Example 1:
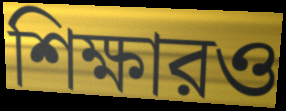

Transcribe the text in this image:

শিক্ষারও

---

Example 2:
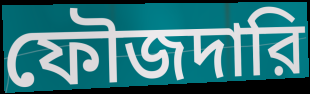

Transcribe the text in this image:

ফৌজদারি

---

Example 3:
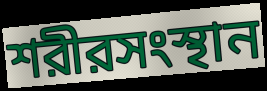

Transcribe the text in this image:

শরীরসংস্থান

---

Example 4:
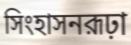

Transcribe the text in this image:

সিংহাসনরূঢ়া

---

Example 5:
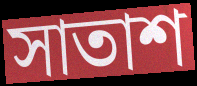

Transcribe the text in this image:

সাতাশ